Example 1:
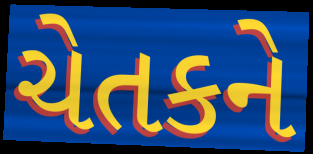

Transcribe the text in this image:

ચેતકને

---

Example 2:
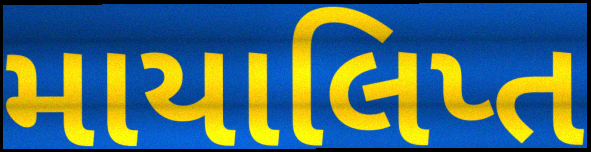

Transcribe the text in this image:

માયાલિપ્ત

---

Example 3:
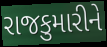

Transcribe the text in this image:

રાજકુમારીને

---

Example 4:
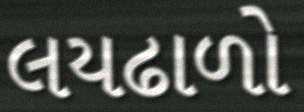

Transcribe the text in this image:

લયઢાળો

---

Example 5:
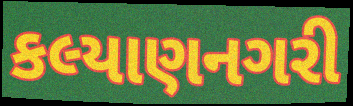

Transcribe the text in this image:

કલ્યાણનગરી